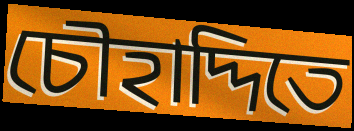
চৌহাদ্দিতে